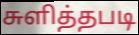
சுளித்தபடி